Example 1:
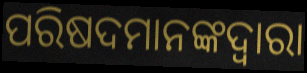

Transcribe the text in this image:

ପରିଷଦମାନଙ୍କଦ୍ୱାରା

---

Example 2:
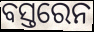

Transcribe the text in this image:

ବସ୍ତରେନ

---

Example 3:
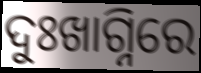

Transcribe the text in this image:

ଦୁଃଖାଗ୍ନିରେ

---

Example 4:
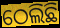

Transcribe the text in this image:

ଠେଲିଛି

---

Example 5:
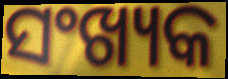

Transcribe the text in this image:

ସଂଖ୍ୟକ